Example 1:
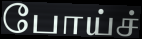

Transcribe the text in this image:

போய்ச்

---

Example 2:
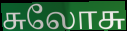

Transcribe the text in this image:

சுலோசு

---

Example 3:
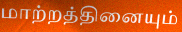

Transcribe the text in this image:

மாற்றத்தினையும்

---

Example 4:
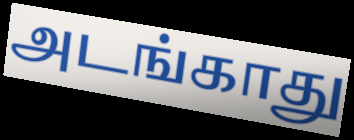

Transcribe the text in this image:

அடங்காது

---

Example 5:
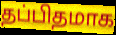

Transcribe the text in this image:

தப்பிதமாக